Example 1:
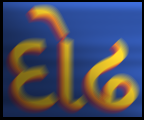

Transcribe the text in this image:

દોઢ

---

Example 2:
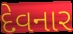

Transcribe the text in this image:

દેવનાર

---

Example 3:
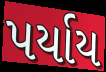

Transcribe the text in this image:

પર્યાય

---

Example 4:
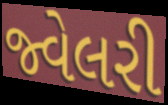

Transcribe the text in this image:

જ્વેલરી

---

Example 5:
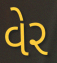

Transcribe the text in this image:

વેર